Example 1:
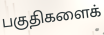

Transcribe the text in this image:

பகுதிகளைக்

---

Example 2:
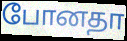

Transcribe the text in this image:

போனதா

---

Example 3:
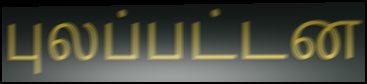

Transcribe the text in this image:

புலப்பட்டன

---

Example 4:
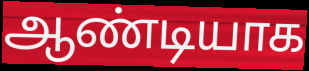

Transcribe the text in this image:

ஆண்டியாக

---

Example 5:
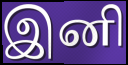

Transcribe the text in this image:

இனி